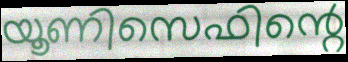
യൂണിസെഫിന്റെ